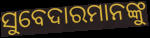
ସୁବେଦାରମାନଙ୍କୁ